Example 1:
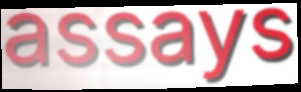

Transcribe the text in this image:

assays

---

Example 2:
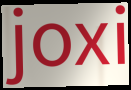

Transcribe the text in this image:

joxi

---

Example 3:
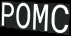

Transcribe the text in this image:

POMC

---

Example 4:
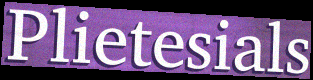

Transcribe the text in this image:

Plietesials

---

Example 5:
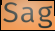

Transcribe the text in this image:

Sag